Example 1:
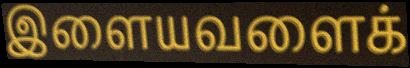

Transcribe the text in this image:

இளையவளைக்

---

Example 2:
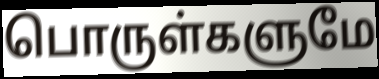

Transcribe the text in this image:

பொருள்களுமே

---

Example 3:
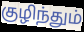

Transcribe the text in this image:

குழிந்தும்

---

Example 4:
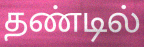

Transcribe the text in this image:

தண்டில்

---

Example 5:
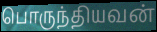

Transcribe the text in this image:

பொருந்தியவன்